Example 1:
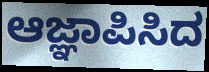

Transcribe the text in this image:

ಆಜ್ಞಾಪಿಸಿದ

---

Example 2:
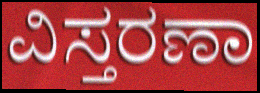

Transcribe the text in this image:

ವಿಸ್ತರಣಾ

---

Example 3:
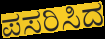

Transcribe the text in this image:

ಪಸರಿಸಿದ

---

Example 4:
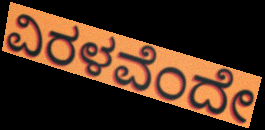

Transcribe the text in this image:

ವಿರಳವೆಂದೇ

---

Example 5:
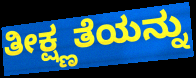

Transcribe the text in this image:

ತೀಕ್ಷ್ಣತೆಯನ್ನು